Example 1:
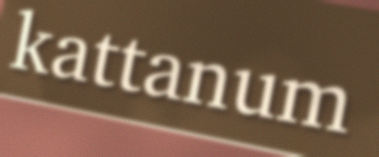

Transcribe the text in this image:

kattanum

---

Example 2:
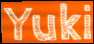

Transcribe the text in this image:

Yuki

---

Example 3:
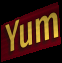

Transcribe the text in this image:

Yum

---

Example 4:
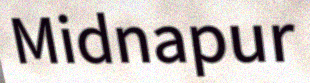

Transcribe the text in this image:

Midnapur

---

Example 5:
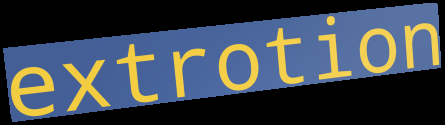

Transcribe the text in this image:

extrotion